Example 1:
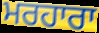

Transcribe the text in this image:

ਮਰਹਾਰਾ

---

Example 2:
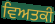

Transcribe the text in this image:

ਵਿਅਤਕੀ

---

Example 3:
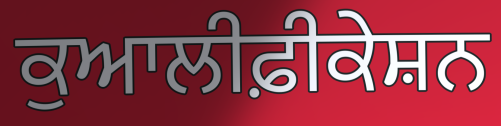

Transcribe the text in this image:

ਕੁਆਲੀਫ਼ੀਕੇਸ਼ਨ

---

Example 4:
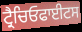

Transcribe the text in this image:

ਟ੍ਰੈਚਿਓਫਾਈਟਸ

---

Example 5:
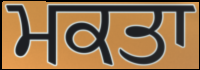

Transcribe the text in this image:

ਮਕਤਾ